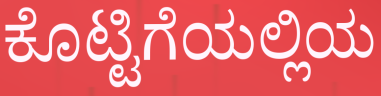
ಕೊಟ್ಟಿಗೆಯಲ್ಲಿಯ